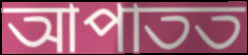
আপাতত